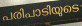
പരിപാടിയുടെ